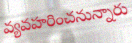
వ్యవహరించనున్నారు